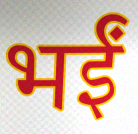
भईं